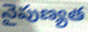
నైపుణ్యత